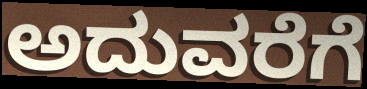
ಅದುವರೆಗೆ